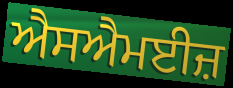
ਐਸਐਮਈਜ਼